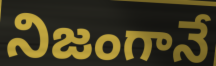
నిజంగానే